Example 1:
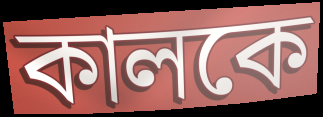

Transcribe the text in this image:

কালকে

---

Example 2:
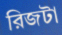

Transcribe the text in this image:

রিজটা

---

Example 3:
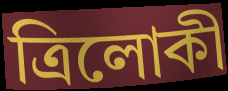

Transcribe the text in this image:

ত্রিলোকী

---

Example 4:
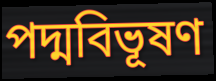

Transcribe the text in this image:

পদ্মবিভূষণ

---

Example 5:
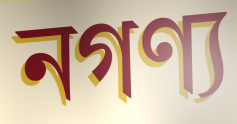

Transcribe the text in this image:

নগণ্য